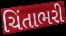
ચિંતાભરી